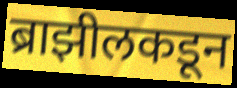
ब्राझीलकडून